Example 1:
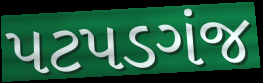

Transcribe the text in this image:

પટપડગંજ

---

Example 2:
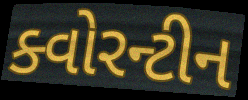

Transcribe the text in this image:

ક્વોરન્ટીન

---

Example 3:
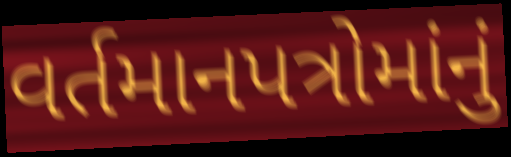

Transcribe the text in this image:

વર્તમાનપત્રોમાંનું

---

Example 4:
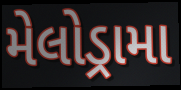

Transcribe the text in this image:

મેલોડ્રામા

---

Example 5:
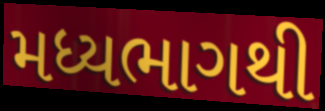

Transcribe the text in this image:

મધ્યભાગથી